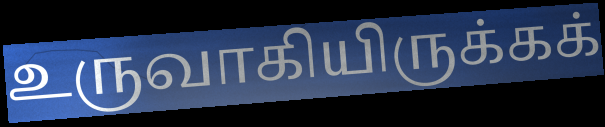
உருவாகியிருக்கக்